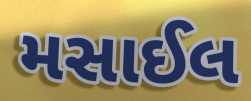
મસાઈલ